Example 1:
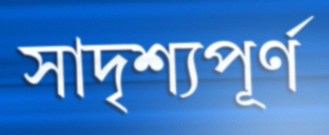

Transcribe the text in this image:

সাদৃশ্যপূর্ণ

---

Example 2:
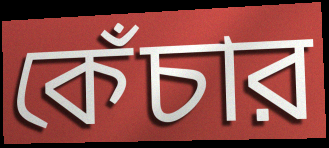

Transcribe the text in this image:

কেঁচার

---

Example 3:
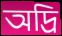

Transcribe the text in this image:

অদ্রি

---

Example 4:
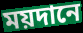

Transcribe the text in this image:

ময়দানে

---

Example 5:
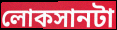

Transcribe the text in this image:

লোকসানটা